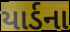
યાર્ડના